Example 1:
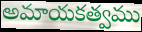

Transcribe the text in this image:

అమాయకత్వము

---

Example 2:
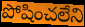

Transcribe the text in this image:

పోషించలేని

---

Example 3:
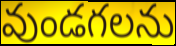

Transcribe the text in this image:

వుండగలను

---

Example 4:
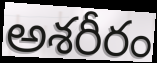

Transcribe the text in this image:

అశరీరం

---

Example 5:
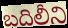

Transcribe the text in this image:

బదిలీని